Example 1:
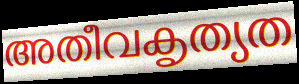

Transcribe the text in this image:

അതീവകൃത്യത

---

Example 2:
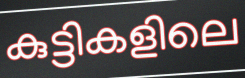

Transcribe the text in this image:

കുട്ടികളിലെ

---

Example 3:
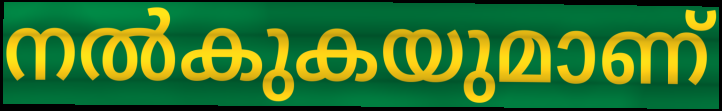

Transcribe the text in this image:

നൽകുകയുമാണ്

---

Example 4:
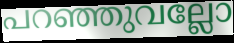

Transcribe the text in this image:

പറഞ്ഞുവല്ലോ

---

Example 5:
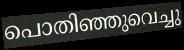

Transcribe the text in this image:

പൊതിഞ്ഞുവെച്ചു